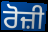
ਰੋਜ਼ੀ